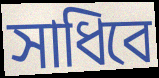
সাধিবে